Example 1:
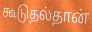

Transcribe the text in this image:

கூடுதல்தான்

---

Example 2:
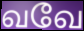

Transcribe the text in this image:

வவே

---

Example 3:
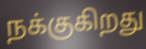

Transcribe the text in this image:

நக்குகிறது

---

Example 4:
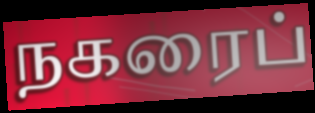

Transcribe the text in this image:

நகரைப்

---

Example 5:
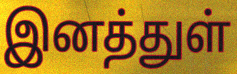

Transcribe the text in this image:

இனத்துள்